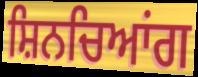
ਸ਼ਿਨਚਿਆਂਗ